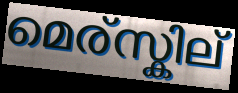
മെര്സ്കില്